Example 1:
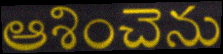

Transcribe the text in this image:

ఆశించెను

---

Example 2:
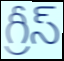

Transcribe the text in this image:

గ్రీస్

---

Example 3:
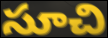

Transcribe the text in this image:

సూచి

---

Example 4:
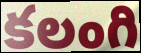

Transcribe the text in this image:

కలంగి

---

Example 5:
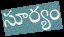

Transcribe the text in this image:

సూర్యం